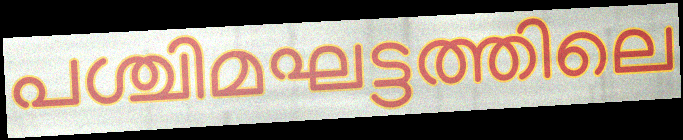
പശ്ചിമഘട്ടത്തിലെ